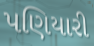
પણિયારી